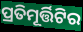
ପ୍ରତିମୂର୍ତ୍ତିଟିର